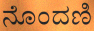
ನೊಂದಣಿ